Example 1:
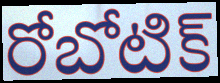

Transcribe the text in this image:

రోబోటిక్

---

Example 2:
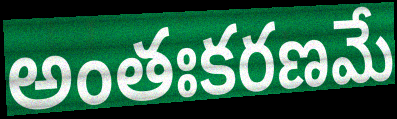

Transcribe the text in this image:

అంతఃకరణమే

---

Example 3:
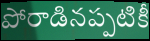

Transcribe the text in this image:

పోరాడినప్పటికీ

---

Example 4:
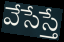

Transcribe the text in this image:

వేసేస్తే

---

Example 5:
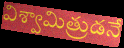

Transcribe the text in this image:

విశ్వామిత్రుడనే